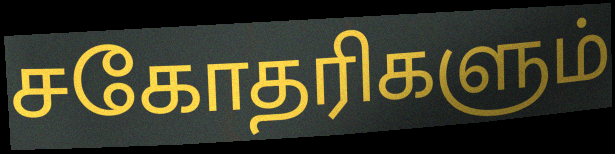
சகோதரிகளும்